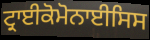
ਟ੍ਰਾਈਕੋਮੋਨਾਈਸਿਸ